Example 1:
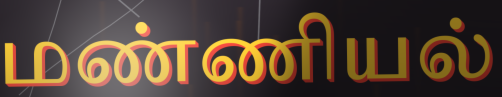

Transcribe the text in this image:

மண்ணியல்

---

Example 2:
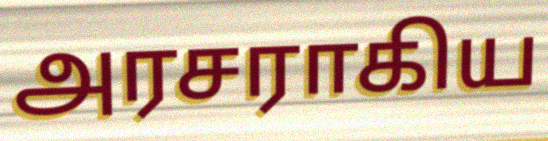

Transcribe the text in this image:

அரசராகிய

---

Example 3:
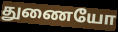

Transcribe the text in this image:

துணையோ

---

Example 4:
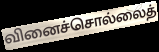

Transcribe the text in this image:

வினைச்சொல்லைத்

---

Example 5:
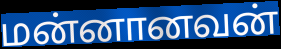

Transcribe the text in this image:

மன்னானவன்